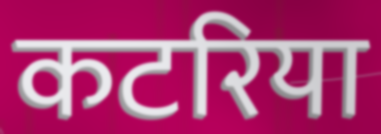
कटरिया